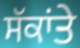
ਸੱਕਾਂਤੇ